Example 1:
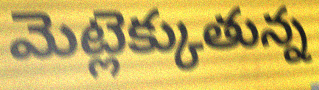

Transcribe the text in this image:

మెట్లెక్కుతున్న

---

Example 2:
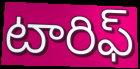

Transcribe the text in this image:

టారిఫ్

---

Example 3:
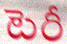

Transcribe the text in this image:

టెరీ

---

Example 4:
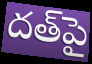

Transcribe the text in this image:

దత్‌పై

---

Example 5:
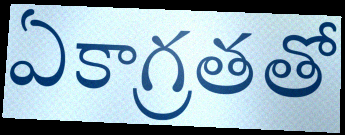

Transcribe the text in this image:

ఏకాగ్రతతో